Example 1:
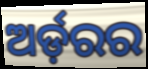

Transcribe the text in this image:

ଅର୍ଡ଼ରର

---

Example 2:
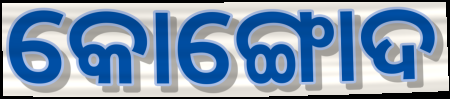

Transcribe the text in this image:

କୋଙ୍ଗୋଦ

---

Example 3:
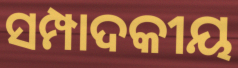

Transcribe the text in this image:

ସମ୍ପାଦକୀୟ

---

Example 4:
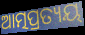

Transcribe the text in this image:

ଆତ୍ମପ୍ରତ୍ୟୟ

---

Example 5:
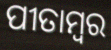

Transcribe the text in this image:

ପୀତାମ୍ୱର